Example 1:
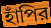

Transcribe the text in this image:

হাঁপির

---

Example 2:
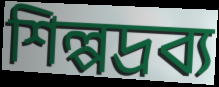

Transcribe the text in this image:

শিল্পদ্রব্য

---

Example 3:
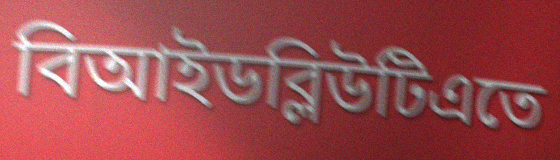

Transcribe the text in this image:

বিআইডব্লিউটিএতে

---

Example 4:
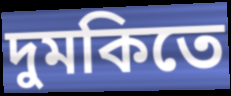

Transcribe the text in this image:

দুমকিতে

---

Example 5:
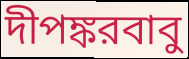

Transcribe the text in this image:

দীপঙ্করবাবু